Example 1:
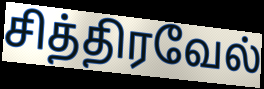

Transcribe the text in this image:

சித்திரவேல்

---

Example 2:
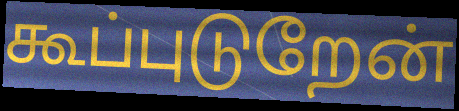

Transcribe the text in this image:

கூப்புடுறேன்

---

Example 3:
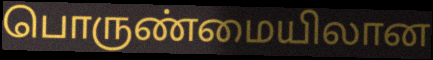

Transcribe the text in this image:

பொருண்மையிலான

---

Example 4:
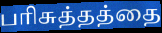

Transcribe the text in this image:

பரிசுத்தத்தை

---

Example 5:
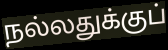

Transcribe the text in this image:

நல்லதுக்குப்